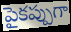
పైకప్పుగా